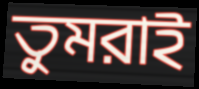
তুমরাই